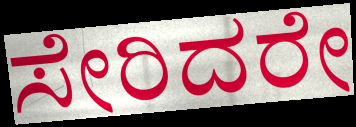
ಸೇರಿದರೇ